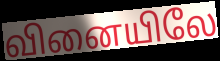
வினையிலே